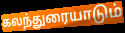
கலந்துரையாடும்